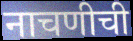
नाचणीची